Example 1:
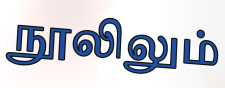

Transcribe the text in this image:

நூலிலும்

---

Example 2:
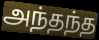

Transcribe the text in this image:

அந்தந்த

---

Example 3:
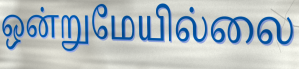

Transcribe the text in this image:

ஒன்றுமேயில்லை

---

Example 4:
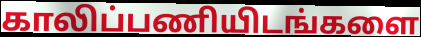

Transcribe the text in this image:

காலிப்பணியிடங்களை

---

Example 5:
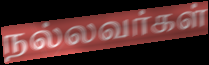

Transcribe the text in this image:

நல்லவர்கள்